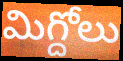
మిగ్దోలు